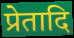
प्रेतादि